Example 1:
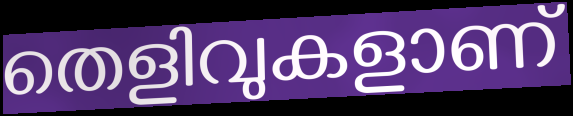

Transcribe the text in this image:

തെളിവുകളാണ്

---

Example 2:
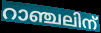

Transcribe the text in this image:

റാഞ്ചലിന്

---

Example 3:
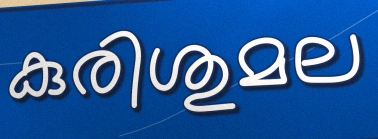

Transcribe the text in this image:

കുരിശുമല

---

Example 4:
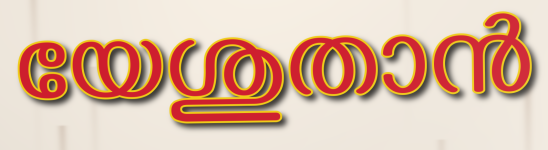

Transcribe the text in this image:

യേശുതാൻ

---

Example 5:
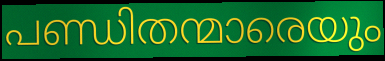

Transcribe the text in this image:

പണ്ഡിതന്മാരെയും